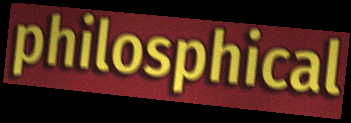
philosphical